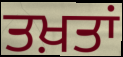
ਤਖ਼ਤਾਂ